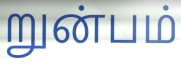
றுன்பம்